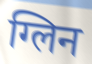
ग्लिन